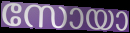
സോയാ